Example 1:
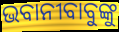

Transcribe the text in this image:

ଭବାନୀବାବୁଙ୍କୁ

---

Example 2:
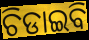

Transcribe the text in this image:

ଚିଡାଇବି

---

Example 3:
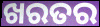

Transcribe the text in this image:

ଖରତର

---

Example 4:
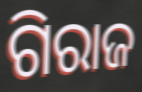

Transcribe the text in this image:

ଗିରାଜ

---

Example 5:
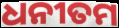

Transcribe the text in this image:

ଧନୀତମ